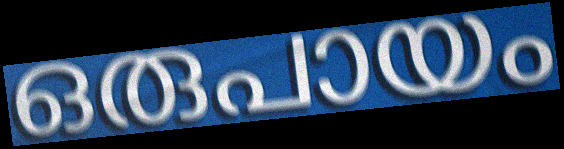
ഒരുപായം